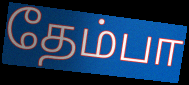
தேம்பா